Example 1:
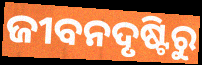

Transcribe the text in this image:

ଜୀବନଦୃଷ୍ଟିରୁ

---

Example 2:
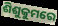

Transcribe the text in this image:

ଶିଶୁକୁମରେ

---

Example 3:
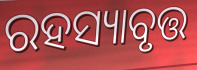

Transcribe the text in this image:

ରହସ୍ୟାବୃତ୍ତ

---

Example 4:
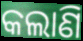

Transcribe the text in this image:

କଲାଣି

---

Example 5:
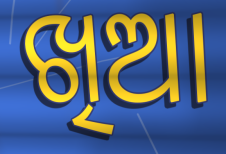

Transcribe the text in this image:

ଖିଆ